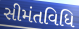
સીમંતવિધિ